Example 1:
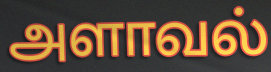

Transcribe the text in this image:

அளாவல்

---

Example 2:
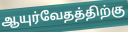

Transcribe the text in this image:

ஆயுர்வேதத்திற்கு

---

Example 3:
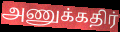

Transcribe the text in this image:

அணுக்கதிர்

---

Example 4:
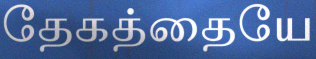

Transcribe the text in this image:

தேகத்தையே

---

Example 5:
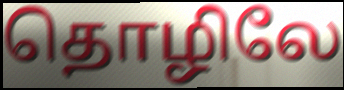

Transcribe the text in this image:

தொழிலே